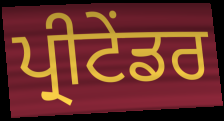
ਪ੍ਰੀਟੇਂਡਰ